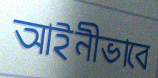
আইনীভাবে